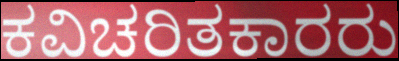
ಕವಿಚರಿತಕಾರರು